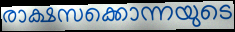
രാക്ഷസക്കൊന്നയുടെ